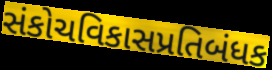
સંકોચવિકાસપ્રતિબંધક